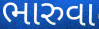
ભારુવા